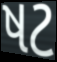
ષટ